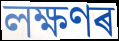
লক্ষণৰ